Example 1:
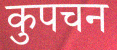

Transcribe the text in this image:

कुपचन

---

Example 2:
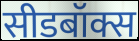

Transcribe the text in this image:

सीडबॉक्स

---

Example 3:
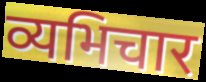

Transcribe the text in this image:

व्यभिचार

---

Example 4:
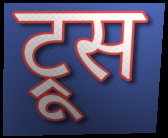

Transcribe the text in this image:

ट्रूस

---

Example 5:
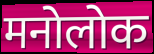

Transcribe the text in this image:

मनोलोक